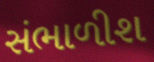
સંભાળીશ